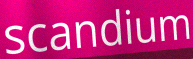
scandium